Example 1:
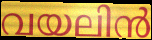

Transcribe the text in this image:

വയലിൻ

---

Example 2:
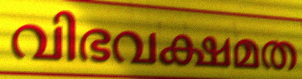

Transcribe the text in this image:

വിഭവക്ഷമത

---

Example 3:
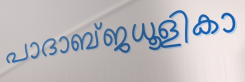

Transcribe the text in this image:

പാദാബ്ജധൂളികാ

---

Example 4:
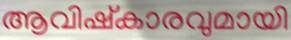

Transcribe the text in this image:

ആവിഷ്കാരവുമായി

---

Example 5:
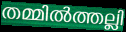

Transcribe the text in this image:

തമ്മിൽത്തല്ലി